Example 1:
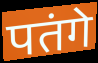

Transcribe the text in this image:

पतंगे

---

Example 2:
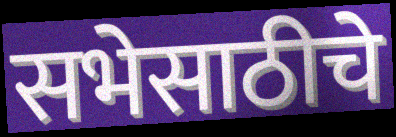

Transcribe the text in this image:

सभेसाठीचे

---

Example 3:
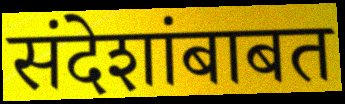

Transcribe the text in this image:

संदेशांबाबत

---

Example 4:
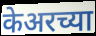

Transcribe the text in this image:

केअरच्या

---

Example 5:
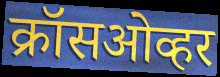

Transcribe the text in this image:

क्रॉसओव्हर